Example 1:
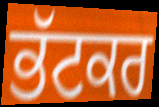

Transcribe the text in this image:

ਭੱਟਕਰ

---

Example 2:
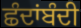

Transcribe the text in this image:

ਛੰਦਾਂਬੰਦੀ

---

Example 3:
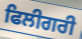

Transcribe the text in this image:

ਫਿਲੀਗਰੀ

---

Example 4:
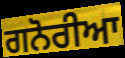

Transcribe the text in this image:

ਗਨੋਰੀਆ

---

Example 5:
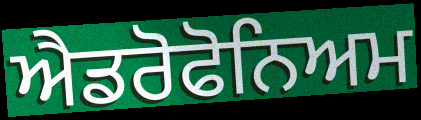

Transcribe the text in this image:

ਐਡਰੋਫੋਨਿਅਮ